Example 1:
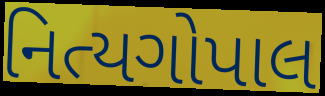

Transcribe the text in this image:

નિત્યગોપાલ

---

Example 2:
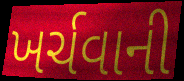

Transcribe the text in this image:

ખર્ચવાની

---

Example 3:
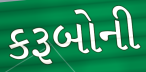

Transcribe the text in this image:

કરૂબોની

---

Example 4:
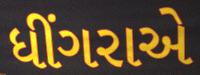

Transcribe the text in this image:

ધીંગરાએ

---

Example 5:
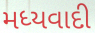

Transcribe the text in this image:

મધ્યવાદી